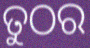
ତୁଠର